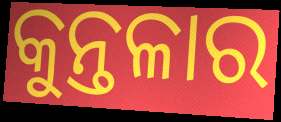
କୁନ୍ତଳାର